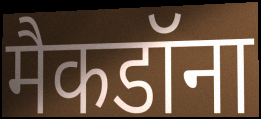
मैकडॉना